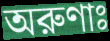
অরুণাঃ